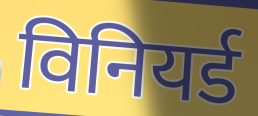
विनियर्ड